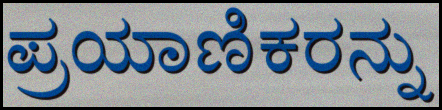
ಪ್ರಯಾಣಿಕರನ್ನು